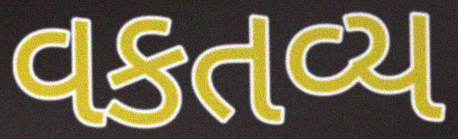
વકતવ્ય